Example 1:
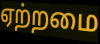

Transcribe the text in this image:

ஏற்றமை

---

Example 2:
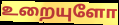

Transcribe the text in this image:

உறையுளோ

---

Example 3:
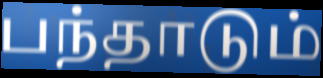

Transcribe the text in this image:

பந்தாடும்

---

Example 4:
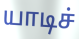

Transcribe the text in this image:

யாடிச்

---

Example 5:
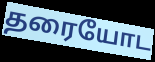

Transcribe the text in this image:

தரையோட